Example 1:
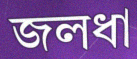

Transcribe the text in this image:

জলধা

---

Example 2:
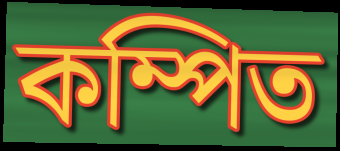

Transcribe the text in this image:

কম্পিত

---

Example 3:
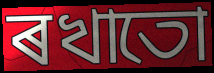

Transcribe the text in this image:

ৰখাতো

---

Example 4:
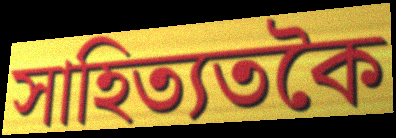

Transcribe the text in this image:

সাহিত্যতকৈ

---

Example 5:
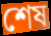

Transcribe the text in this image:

শেষ